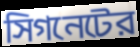
সিগনেটের